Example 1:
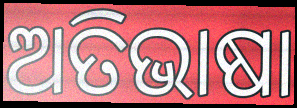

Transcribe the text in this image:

ଅତିଭାଷା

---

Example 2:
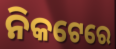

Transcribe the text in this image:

ନିକଟେରେ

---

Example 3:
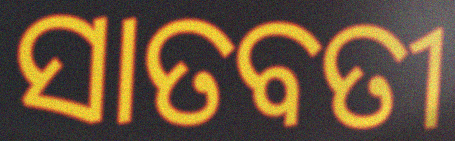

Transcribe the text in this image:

ସାତବତୀ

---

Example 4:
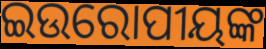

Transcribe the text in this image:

ଇଉରୋପୀୟଙ୍କ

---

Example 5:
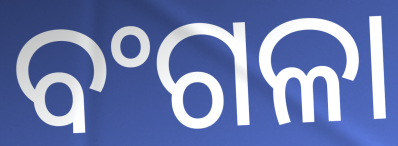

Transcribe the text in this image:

ବଂଗଳା